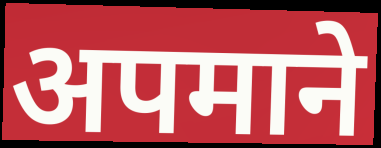
अपमाने